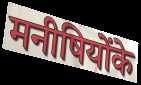
मनीषियोंके